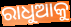
ରାଧୁଆକୁ